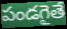
పండగైతే